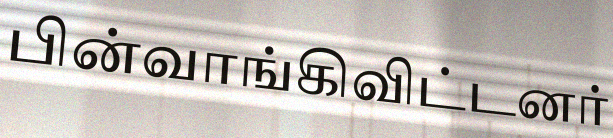
பின்வாங்கிவிட்டனர்